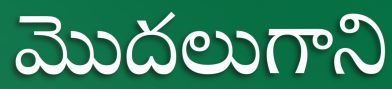
మొదలుగాని